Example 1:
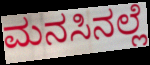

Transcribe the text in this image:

ಮನಸಿನಲ್ಲೆ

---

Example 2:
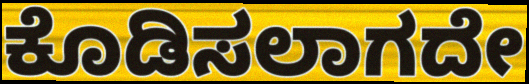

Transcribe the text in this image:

ಕೊಡಿಸಲಾಗದೇ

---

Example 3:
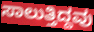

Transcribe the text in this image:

ಸಾಲುತ್ತಿದ್ದವು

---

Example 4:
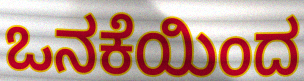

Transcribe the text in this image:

ಒನಕೆಯಿಂದ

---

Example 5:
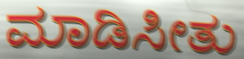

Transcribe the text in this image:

ಮಾಡಿಸೀತು